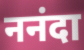
ननंदा